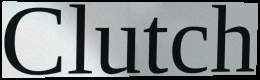
Clutch